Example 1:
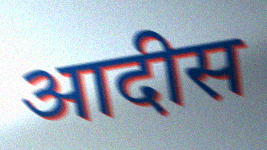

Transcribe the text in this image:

आदीस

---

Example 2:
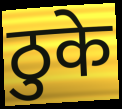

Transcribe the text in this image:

ठुके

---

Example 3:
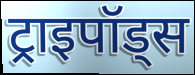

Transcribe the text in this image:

ट्राइपॉड्स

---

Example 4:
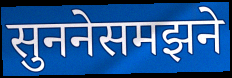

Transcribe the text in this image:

सुननेसमझने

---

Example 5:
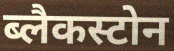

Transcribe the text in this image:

ब्लैकस्टोन